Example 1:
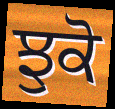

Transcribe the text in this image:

ਝੁਕੋ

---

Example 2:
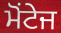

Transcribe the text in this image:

ਮੋਂਟੇਜ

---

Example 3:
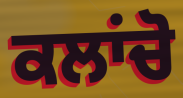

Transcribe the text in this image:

ਕਲਾਂਚੋ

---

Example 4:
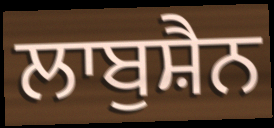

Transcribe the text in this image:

ਲਾਬੁਸ਼ੈਨ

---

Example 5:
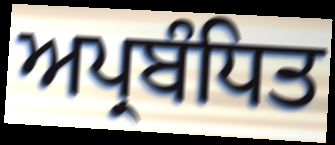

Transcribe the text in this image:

ਅਪ੍ਰਬੰਧਿਤ